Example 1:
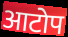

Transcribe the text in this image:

आटोप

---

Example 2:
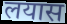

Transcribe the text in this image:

लयास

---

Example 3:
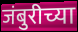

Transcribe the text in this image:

जंबुरीच्या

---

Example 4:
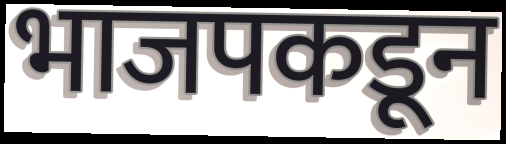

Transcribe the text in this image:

भाजपकडून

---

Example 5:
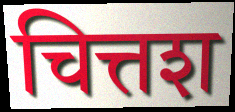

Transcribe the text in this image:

चित्तश